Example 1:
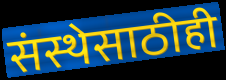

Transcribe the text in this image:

संस्थेसाठीही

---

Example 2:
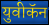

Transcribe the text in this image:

युवीकॅन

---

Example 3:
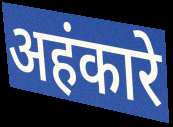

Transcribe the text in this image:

अहंकारे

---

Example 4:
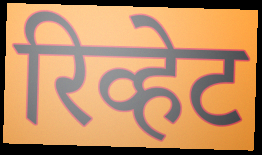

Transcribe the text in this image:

रिव्हेट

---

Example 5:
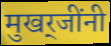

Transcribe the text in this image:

मुखर्जींनी